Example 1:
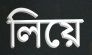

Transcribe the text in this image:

লিয়ে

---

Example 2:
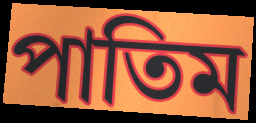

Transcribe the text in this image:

পাতিম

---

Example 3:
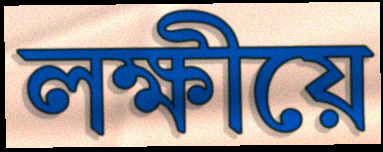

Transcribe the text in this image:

লক্ষীয়ে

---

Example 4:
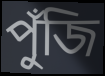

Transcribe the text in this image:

পুঁজি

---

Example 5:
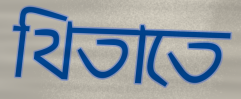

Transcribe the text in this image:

থিতাতে